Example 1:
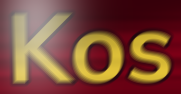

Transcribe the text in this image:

Kos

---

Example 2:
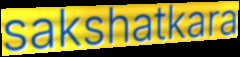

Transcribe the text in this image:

sakshatkara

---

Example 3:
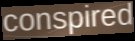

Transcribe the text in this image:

conspired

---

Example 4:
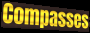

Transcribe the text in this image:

Compasses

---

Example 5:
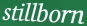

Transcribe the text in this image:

stillborn